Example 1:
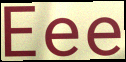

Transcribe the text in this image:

Eee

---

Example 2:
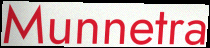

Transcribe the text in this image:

Munnetra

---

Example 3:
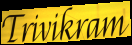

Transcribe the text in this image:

Trivikram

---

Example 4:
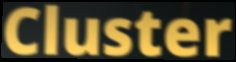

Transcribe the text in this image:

Cluster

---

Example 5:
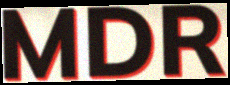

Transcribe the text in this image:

MDR